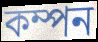
কম্পন